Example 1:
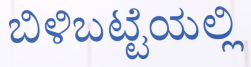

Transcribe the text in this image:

ಬಿಳಿಬಟ್ಟೆಯಲ್ಲಿ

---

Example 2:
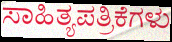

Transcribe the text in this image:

ಸಾಹಿತ್ಯಪತ್ರಿಕೆಗಳು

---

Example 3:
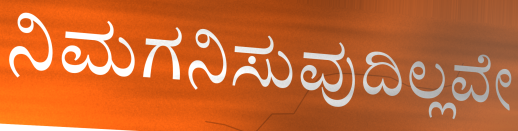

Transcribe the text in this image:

ನಿಮಗನಿಸುವುದಿಲ್ಲವೇ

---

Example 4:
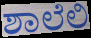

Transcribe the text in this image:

ಶಾಲೆಲಿ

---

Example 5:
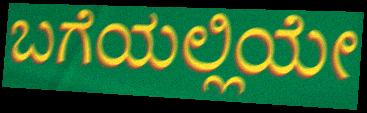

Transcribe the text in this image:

ಬಗೆಯಲ್ಲಿಯೇ